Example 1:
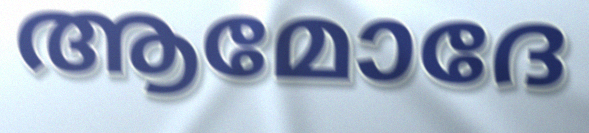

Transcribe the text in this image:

ആമോദേ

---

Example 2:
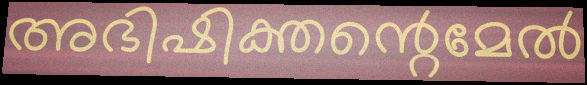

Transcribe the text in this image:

അഭിഷിക്തന്റെമേൽ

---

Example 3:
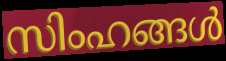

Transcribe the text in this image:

സിംഹങ്ങൾ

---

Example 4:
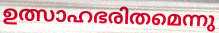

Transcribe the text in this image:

ഉത്സാഹഭരിതമെന്നു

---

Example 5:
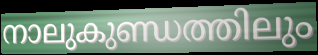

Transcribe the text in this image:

നാലുകുണ്ഡത്തിലും